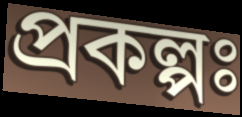
প্ৰকল্পঃ